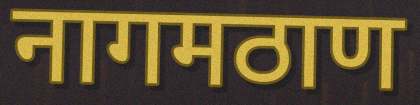
नागमठाण